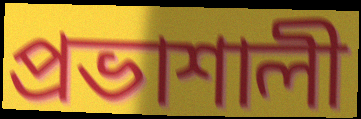
প্রভাশালী